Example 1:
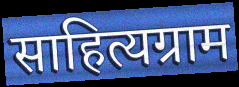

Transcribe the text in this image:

साहित्यग्राम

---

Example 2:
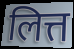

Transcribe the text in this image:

लित्त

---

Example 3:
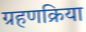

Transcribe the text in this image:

ग्रहणक्रिया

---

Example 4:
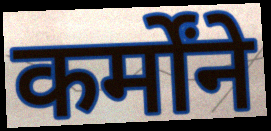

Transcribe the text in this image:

कर्मोंने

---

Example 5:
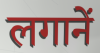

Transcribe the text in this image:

लगानें